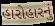
હારોહારનું